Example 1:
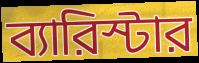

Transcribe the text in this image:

ব্যারিস্টার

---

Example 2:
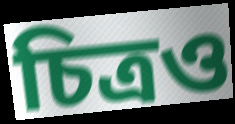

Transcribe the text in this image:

চিত্রও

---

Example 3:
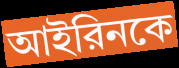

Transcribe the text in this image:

আইরিনকে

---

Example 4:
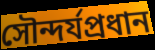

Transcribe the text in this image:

সৌন্দর্যপ্রধান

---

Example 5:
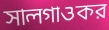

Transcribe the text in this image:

সালগাওকর